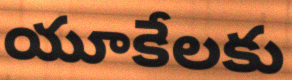
యూకేలకు